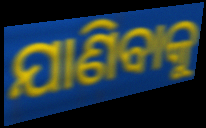
ଯାଣିବାକୁ